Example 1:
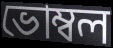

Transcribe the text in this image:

ভোম্বল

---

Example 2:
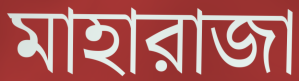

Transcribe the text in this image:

মাহারাজা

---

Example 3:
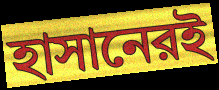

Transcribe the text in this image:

হাসানেরই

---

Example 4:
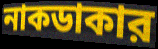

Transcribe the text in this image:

নাকডাকার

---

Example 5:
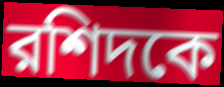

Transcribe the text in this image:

রশিদকে